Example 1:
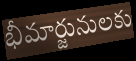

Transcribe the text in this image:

భీమార్జునులకు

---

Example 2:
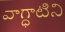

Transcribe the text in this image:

వాగ్ధాటిని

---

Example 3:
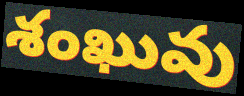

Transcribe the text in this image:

శంఖువు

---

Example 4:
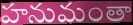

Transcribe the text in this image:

హనుమంతా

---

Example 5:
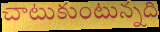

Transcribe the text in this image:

చాటుకుంటున్నది